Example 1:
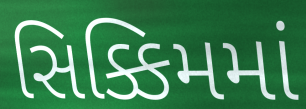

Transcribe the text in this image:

સિક્કિમમાં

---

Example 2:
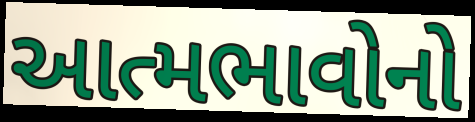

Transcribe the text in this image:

આત્મભાવોનો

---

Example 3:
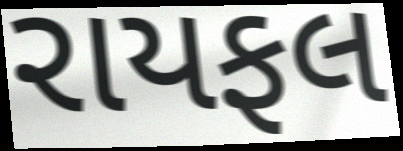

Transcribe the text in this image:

રાયફલ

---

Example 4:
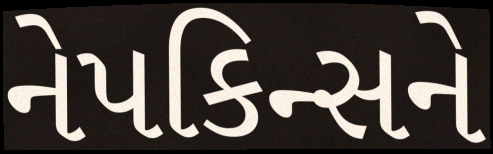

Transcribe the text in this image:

નેપકિન્સને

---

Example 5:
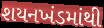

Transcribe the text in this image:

શયનખંડમાંથી